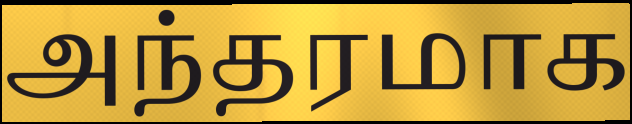
அந்தரமாக